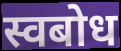
स्वबोध